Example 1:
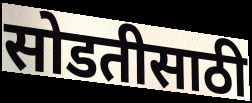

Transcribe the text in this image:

सोडतीसाठी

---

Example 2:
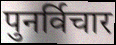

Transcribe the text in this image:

पुनर्विचार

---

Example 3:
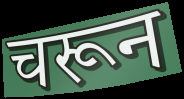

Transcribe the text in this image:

चरून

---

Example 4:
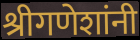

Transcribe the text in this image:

श्रीगणेशांनी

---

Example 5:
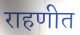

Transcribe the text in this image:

राहणीत